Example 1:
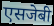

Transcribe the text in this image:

एसजेबी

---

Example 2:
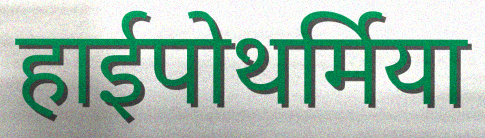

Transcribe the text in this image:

हाईपोथर्मिया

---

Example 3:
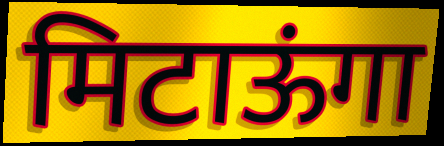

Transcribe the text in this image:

मिटाऊंगा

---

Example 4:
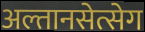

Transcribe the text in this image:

अल्तानसेत्सेग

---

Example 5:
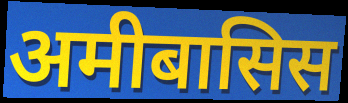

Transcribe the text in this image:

अमीबासिस